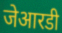
जेआरडी